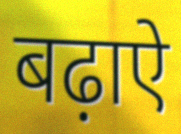
बढ़ाऐ